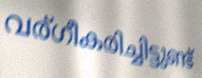
വര്ഗീകരിച്ചിട്ടുണ്ട്